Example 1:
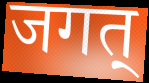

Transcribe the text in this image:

जगत्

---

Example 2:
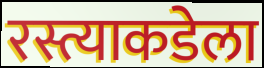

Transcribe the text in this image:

रस्त्याकडेला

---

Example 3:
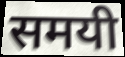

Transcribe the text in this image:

समयी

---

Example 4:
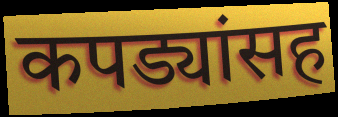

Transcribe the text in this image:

कपड्यांसह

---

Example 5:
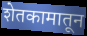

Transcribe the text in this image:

शेतकामातून